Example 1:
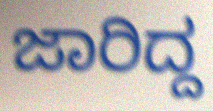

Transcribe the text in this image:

ಜಾರಿದ್ದ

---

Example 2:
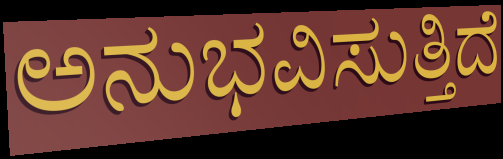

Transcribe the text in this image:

ಅನುಭವಿಸುತ್ತಿದೆ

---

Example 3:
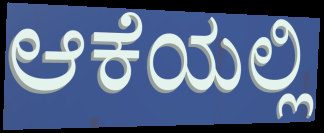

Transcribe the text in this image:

ಆಕೆಯಲ್ಲಿ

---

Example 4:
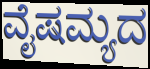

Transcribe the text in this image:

ವೈಷಮ್ಯದ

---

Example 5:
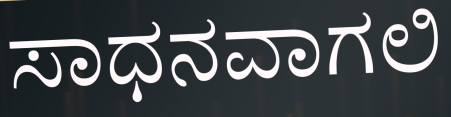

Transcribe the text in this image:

ಸಾಧನವಾಗಲಿ